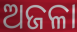
ଅଜଳା